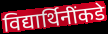
विद्यार्थिनींकडे